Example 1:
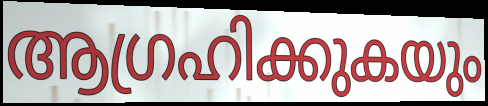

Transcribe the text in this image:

ആഗ്രഹിക്കുകയും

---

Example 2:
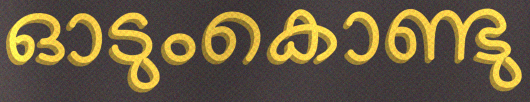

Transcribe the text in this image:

ഓടുംകൊണ്ടു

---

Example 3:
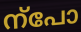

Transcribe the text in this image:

ന്പോ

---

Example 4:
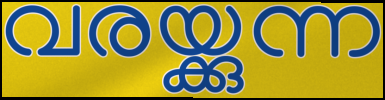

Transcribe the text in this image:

വരയ്ക്കുന്ന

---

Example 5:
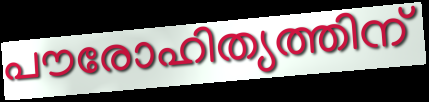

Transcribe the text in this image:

പൗരോഹിത്യത്തിന്